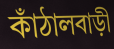
কাঁঠালবাড়ী